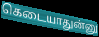
கெடையாதுன்னு